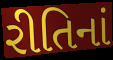
રીતિનાં